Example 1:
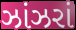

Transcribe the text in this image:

ઝાંઝરાં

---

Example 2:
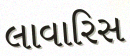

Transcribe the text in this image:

લાવારિસ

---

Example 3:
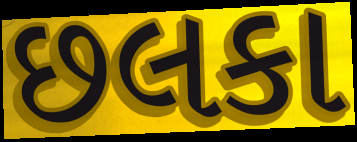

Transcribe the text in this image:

છલકા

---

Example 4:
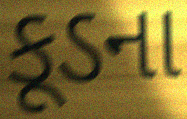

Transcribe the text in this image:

કૂડના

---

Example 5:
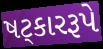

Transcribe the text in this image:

ષટ્કારરૂપે